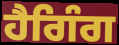
ਹੈਗਿੰਗ